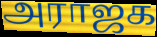
அராஜக